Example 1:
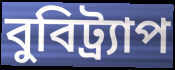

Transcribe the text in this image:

বুবিট্র্যাপ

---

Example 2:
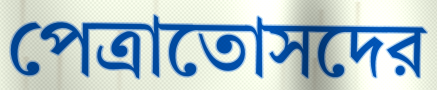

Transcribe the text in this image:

পেত্রাতোসদের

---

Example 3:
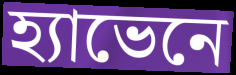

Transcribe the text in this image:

হ্যাভেনে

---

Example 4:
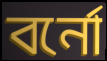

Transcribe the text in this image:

বর্নো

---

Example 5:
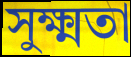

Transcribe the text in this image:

সুক্ষ্মতা